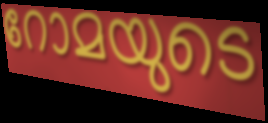
റോമയുടെ